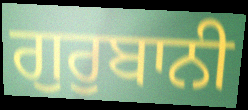
ਗੁਰੁਬਾਨੀ